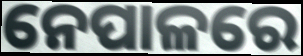
ନେପାଳରେ